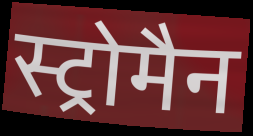
स्ट्रोमैन